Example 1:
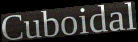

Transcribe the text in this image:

Cuboidal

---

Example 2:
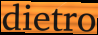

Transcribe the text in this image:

dietro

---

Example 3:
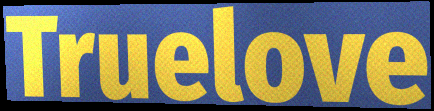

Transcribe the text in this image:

Truelove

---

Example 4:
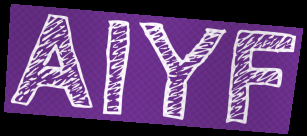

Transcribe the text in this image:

AIYF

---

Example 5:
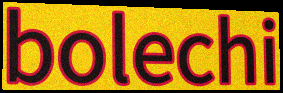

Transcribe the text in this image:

bolechi